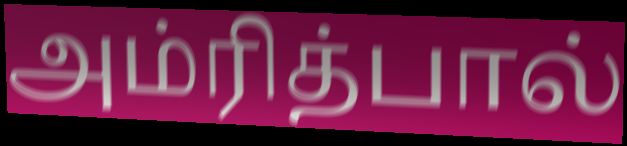
அம்ரித்பால்